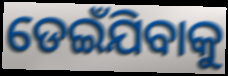
ଡେଇଁଯିବାକୁ